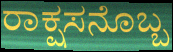
ರಾಕ್ಷಸನೊಬ್ಬ